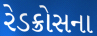
રેડક્રોસના